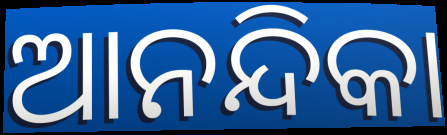
ଆନନ୍ଦିକା